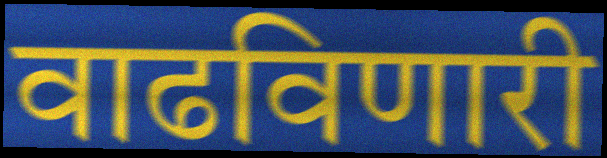
वाढविणारी